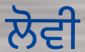
ਲੋਵੀ